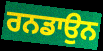
ਰਨਡਾਉਨ